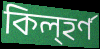
কিল্‌হর্ণ